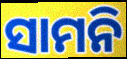
ସାମନି